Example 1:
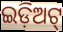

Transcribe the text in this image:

ଇଡ଼ିଅଟ୍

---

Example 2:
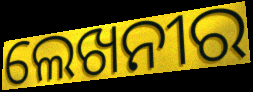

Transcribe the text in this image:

ଲେଖନୀର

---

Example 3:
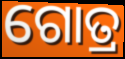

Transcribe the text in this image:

ଗୋତ୍ର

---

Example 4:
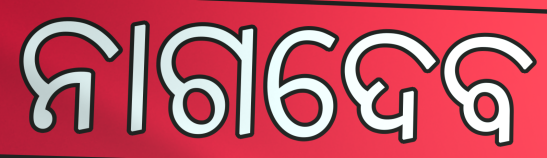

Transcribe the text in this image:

ନାଗଦେବ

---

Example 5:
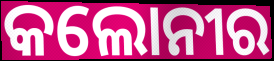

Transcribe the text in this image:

କଲୋନୀର